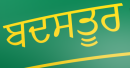
ਬਦਸਤੂਰ